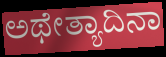
ಅಥೇತ್ಯಾದಿನಾ